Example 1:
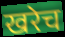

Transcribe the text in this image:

खरेच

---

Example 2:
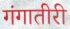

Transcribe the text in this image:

गंगातीरी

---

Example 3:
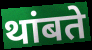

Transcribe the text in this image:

थांबते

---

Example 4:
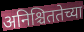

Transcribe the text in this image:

अनिश्चिततेच्या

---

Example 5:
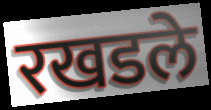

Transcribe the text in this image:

रखडले